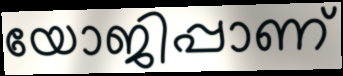
യോജിപ്പാണ്